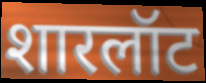
शारलॉट